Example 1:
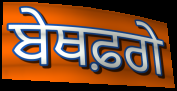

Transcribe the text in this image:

ਬੇਥਫ਼ਗੇ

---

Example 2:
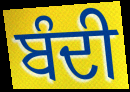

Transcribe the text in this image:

ਬੰਦੀ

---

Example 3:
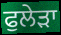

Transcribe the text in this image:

ਫੁਲੇੜਾ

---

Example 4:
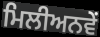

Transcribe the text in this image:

ਮਿਲੀਅਨਵੇਂ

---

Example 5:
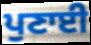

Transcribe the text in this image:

ਪੁਣਾਈ